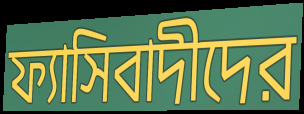
ফ্যাসিবাদীদের